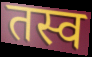
तस्व